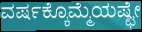
ವರ್ಷಕ್ಕೊಮ್ಮೆಯಷ್ಟೇ